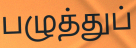
பழுத்துப்